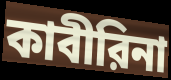
কাবীরিনা